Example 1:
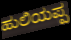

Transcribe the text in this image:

ಹುಲಿಯಪ್ಪ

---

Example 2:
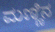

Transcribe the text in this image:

ಮಣ್ಣಿನ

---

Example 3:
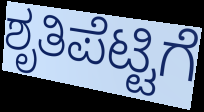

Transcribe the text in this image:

ಶೃತಿಪೆಟ್ಟಿಗೆ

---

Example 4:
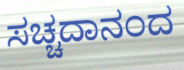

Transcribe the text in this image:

ಸಚ್ಚದಾನಂದ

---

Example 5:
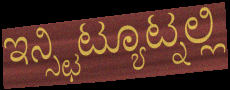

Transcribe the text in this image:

ಇನ್ಸ್ಟಿಟ್ಯೂಟ್ನಲ್ಲಿ